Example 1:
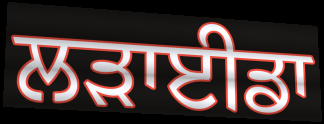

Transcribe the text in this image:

ਲੜਾਈਡਾ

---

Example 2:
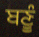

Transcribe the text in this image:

ਬਣੂੰ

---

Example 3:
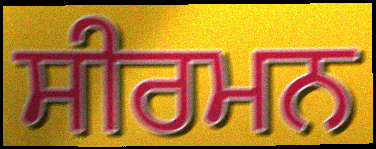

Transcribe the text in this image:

ਸੀਰਮਨ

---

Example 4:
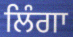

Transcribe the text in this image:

ਲਿੰਗਾ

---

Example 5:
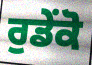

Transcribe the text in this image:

ਰੁਡੇਂਕੋ